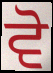
ਵੋ